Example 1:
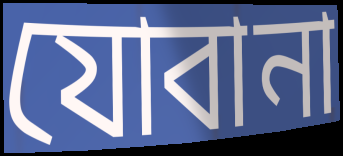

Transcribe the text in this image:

যোবানা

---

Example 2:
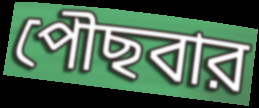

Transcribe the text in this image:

পৌছবার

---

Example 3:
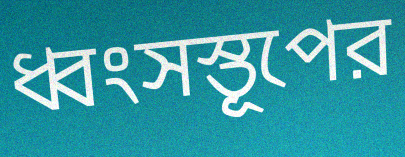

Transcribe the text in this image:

ধ্বংসস্তূপের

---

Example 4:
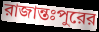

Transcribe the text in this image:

রাজান্তঃপুরের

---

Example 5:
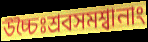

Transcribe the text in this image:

উচ্চৈঃশ্রবসমশ্বানাং